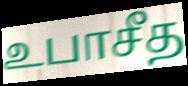
உபாசீத